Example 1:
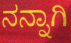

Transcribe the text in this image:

ನನ್ನಾಗಿ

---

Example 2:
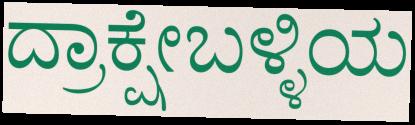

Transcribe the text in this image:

ದ್ರಾಕ್ಷೇಬಳ್ಳಿಯ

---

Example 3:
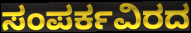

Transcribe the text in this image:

ಸಂಪರ್ಕವಿರದ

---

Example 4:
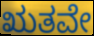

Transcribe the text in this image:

ಋತವೇ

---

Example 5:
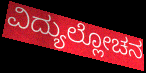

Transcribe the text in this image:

ವಿದ್ಯುಲ್ಲೋಚನ